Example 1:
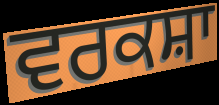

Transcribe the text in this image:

ਵਰਕਸ਼ਾ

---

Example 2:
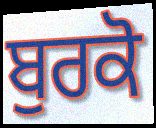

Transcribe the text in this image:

ਬੁਰਕੋ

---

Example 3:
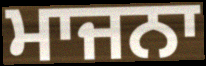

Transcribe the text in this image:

ਮਾਜਨਾ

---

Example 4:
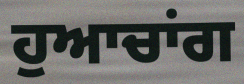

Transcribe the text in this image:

ਹੁਆਚਾਂਗ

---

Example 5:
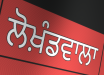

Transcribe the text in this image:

ਲੋਖ਼ੰਡਵਾਲਾ